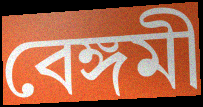
বেঙ্গমী